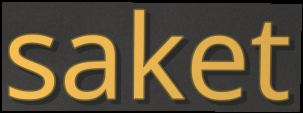
saket